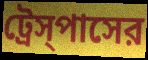
ট্রেস্‌পাসের